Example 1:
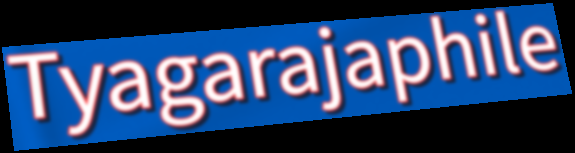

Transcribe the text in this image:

Tyagarajaphile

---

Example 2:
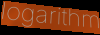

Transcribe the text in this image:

logarithm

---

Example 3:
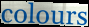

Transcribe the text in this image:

colours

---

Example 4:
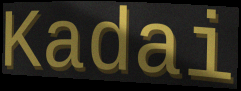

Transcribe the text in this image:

Kadai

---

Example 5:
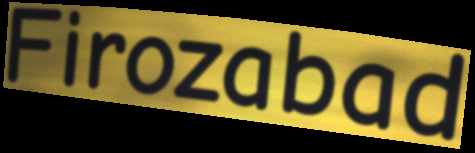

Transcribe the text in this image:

Firozabad